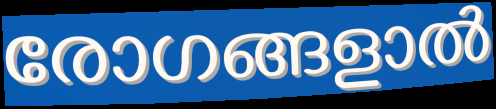
രോഗങ്ങളാൽ